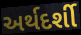
અર્થદર્શી